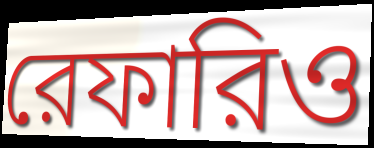
রেফারিও